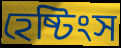
হেষ্টিংস